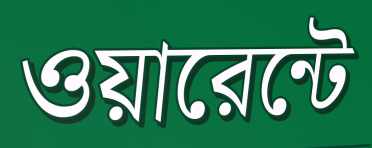
ওয়ারেন্টে